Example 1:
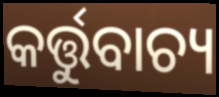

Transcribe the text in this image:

କର୍ତ୍ତୁବାଚ୍ୟ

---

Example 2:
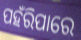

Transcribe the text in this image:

ପହଁରିପାରେ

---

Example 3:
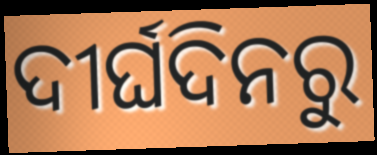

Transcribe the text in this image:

ଦୀର୍ଘଦିନରୁ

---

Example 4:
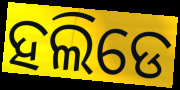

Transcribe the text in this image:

ହଲିଡେ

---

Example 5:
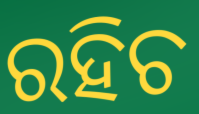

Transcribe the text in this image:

ରହିଚ